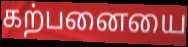
கற்பனையை